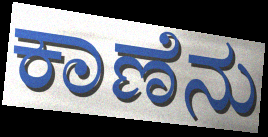
ಕಾಣೆನು